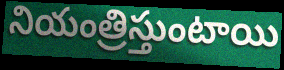
నియంత్రిస్తుంటాయి